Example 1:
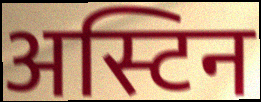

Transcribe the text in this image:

अस्टिन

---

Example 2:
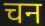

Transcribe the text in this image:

चन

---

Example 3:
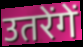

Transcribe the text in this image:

उतरेंगें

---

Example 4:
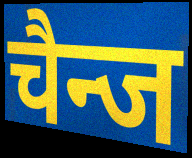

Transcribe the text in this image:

चैन्ज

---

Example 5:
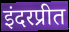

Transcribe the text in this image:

इंदरप्रीत